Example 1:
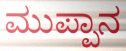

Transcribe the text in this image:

ಮುಪ್ಪಾನ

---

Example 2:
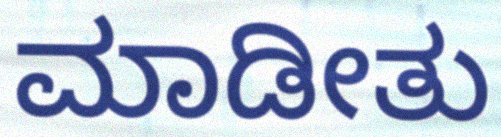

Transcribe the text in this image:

ಮಾಡೀತು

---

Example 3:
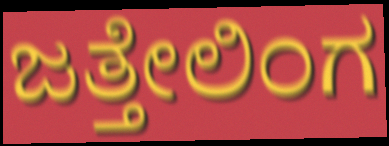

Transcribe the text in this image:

ಜತ್ತೇಲಿಂಗ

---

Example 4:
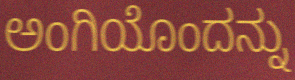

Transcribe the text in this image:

ಅಂಗಿಯೊಂದನ್ನು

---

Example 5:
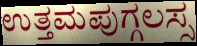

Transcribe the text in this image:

ಉತ್ತಮಪುಗ್ಗಲಸ್ಸ